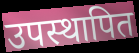
उपस्थापित